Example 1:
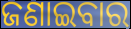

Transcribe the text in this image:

ଜଣାଇବାର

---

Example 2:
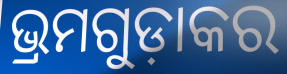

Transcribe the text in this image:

ଭ୍ରମଗୁଡ଼ାକର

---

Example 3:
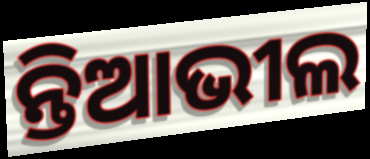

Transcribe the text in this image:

ନ୍ତିଆଭୀଲ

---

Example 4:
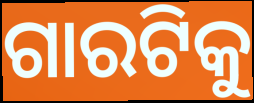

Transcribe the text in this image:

ଗାରଟିକୁ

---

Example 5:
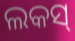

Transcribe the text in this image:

ଲକସ୍